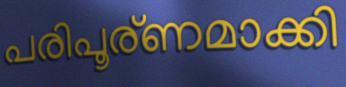
പരിപൂര്ണമാക്കി